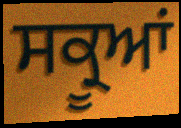
ਸਕ੍ਰੂਆਂ